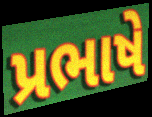
પ્રભાષે